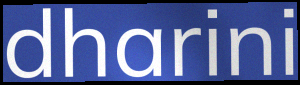
dharini